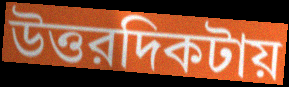
উত্তরদিকটায়